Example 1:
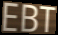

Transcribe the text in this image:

EBT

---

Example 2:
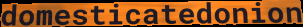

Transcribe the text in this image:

domesticatedonion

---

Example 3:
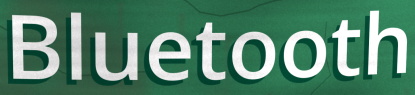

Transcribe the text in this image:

Bluetooth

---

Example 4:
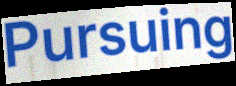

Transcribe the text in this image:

Pursuing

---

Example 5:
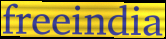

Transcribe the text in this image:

freeindia